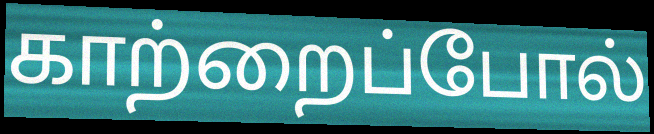
காற்றைப்போல்